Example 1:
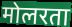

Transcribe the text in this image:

मोलरता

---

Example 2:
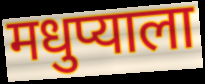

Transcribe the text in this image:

मधुप्याला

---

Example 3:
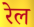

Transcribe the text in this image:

रेल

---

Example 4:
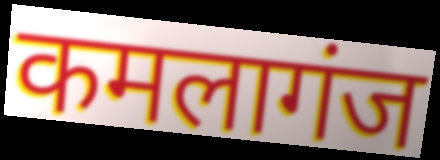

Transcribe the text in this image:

कमलागंज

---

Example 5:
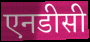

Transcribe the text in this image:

एनडीसी